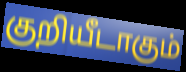
குறியீடாகும்